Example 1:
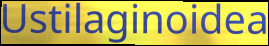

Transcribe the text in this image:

Ustilaginoidea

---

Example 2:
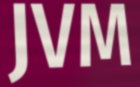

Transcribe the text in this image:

JVM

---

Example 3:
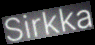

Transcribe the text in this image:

Sirkka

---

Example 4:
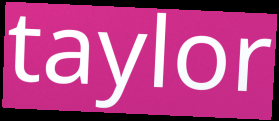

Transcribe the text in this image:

taylor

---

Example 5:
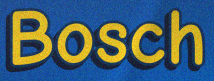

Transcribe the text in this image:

Bosch